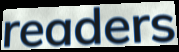
readers